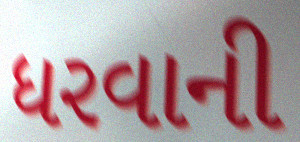
ધરવાની